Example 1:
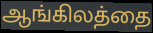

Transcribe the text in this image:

ஆங்கிலத்தை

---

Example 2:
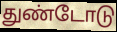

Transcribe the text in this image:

துண்டோடு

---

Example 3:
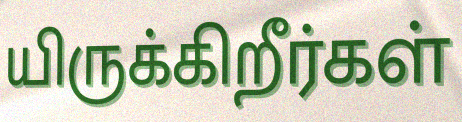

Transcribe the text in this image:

யிருக்கிறீர்கள்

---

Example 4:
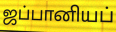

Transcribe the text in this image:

ஜப்பானியப்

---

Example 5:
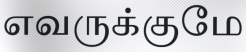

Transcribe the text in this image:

எவருக்குமே